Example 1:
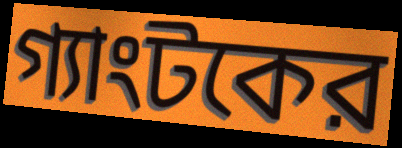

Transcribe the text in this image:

গ্যাংটকের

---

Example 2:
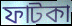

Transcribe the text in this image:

ফাটকা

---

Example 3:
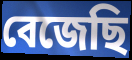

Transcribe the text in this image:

বেজেছি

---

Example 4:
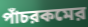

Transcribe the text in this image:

পাঁচরকমের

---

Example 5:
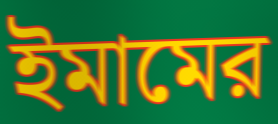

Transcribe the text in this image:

ইমামের